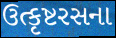
ઉત્કૃષ્ટરસના